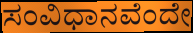
ಸಂವಿಧಾನವೆಂದೇ